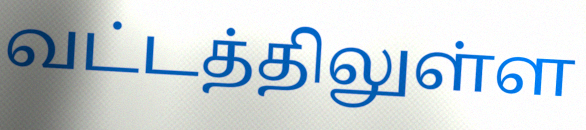
வட்டத்திலுள்ள